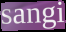
sangi